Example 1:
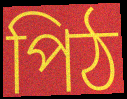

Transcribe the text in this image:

পিঠ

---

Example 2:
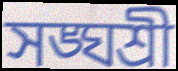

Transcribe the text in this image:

সঙ্ঘশ্রী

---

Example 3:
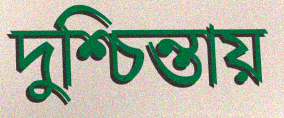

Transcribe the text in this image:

দুশ্চিন্তায়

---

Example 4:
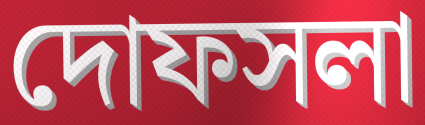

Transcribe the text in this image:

দোফসলা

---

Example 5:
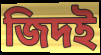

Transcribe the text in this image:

জিদই